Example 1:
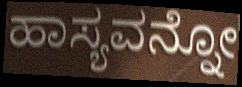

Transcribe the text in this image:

ಹಾಸ್ಯವನ್ನೋ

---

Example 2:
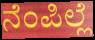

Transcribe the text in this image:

ನೆಂಪಿಲ್ಲೆ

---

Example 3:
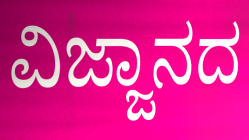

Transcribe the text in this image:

ವಿಜ್ಜಾನದ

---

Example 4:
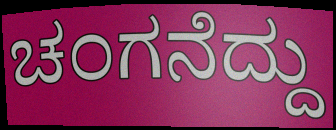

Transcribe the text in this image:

ಚಂಗನೆದ್ದು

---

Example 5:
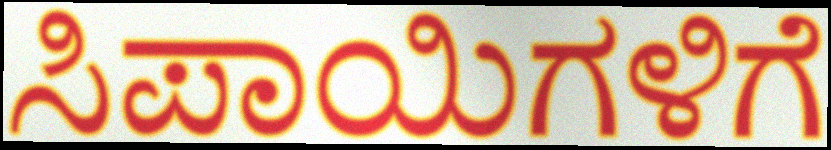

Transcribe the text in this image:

ಸಿಪಾಯಿಗಳಿಗೆ